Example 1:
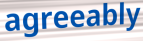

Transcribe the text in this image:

agreeably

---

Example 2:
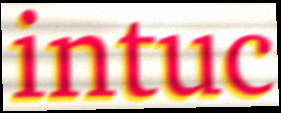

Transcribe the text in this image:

intuc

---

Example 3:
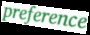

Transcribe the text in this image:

preference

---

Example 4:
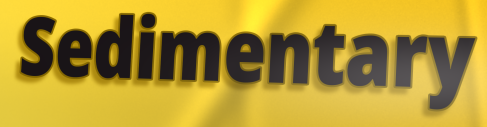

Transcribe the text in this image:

Sedimentary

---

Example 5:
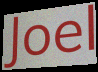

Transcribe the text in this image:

Joel